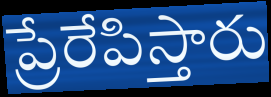
ప్రేరేపిస్తారు